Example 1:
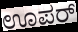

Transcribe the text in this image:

ಊಪರ್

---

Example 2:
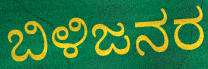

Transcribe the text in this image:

ಬಿಳಿಜನರ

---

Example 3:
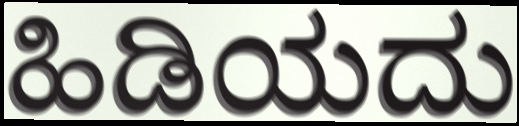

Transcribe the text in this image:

ಹಿಡಿಯದು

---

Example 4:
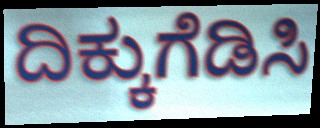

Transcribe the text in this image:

ದಿಕ್ಕುಗೆಡಿಸಿ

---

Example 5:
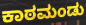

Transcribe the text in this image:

ಕಾಠಮಂಡು